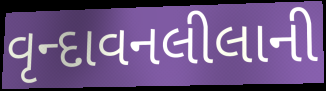
વૃન્દાવનલીલાની